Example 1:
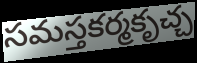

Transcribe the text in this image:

సమస్తకర్మకృచ్చ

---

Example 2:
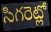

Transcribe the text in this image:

సిగరెట్లో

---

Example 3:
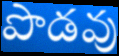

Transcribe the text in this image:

పొడవు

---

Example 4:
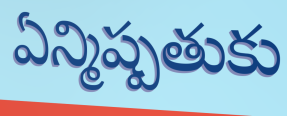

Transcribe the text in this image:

ఏన్మిష్పతుకు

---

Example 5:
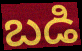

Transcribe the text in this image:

బడి